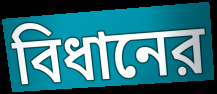
বিধানের